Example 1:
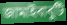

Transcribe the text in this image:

জামাইবাবুটি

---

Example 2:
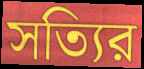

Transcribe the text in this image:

সত্যির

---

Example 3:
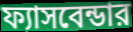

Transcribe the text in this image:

ফ্যাসবেন্ডার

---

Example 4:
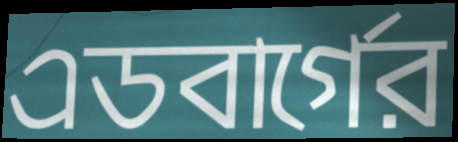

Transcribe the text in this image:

এডবার্গের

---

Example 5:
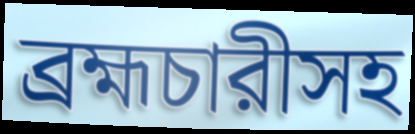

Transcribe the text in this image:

ব্রহ্মচারীসহ